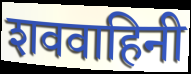
शववाहिनी